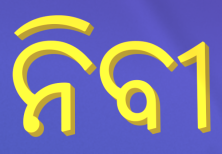
ନିବୀ